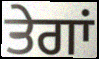
ਤੇਗਾਂ